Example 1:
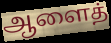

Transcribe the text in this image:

ஆளைத்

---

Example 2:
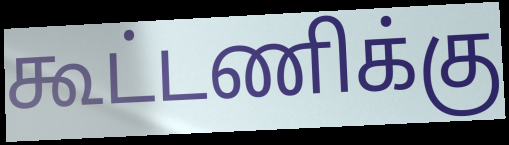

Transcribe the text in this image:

கூட்டணிக்கு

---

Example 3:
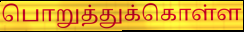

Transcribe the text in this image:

பொறுத்துக்கொள்ள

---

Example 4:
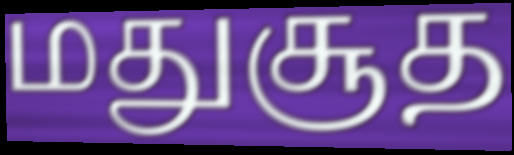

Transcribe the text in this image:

மதுசூத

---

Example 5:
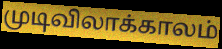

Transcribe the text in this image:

முடிவிலாக்காலம்